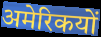
अमेरिकयों